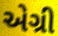
એગ્રી